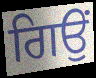
ਗਿਉਂ